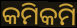
କମିକମି